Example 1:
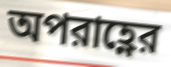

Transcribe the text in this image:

অপরাহ্ণের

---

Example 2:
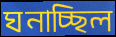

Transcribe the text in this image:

ঘনাচ্ছিল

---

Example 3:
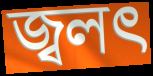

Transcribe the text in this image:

জ্বলৎ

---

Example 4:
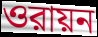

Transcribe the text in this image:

ওরায়ন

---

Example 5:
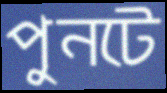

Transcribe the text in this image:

পুনটে